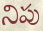
నిపు